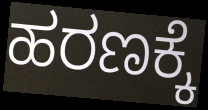
ಹರಣಕ್ಕೆ